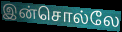
இன்சொல்லே